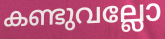
കണ്ടുവല്ലോ